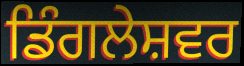
ਡਿੰਗਲੇਸ਼ਵਰ